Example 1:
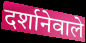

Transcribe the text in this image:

दर्शानेवाले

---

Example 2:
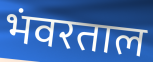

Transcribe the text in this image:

भंवरताल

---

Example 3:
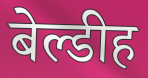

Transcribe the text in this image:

बेल्डीह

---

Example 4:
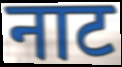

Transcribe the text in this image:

नाट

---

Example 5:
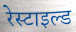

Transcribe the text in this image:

रेस्टाइल्ड